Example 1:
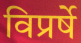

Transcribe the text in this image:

विप्रर्षे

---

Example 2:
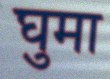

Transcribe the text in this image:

घुमा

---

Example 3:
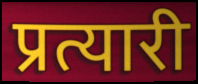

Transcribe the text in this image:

प्रत्यारी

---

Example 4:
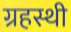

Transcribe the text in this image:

ग्रहस्थी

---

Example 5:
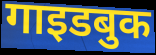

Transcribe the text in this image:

गाइडबुक